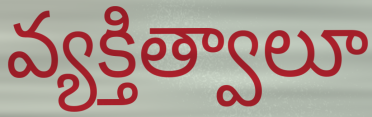
వ్యక్తిత్వాలూ